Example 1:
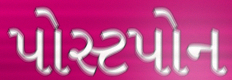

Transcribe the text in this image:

પોસ્ટપોન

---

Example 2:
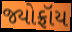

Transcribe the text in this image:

જ્યોફ્રૉય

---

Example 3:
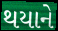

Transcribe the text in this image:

થયાને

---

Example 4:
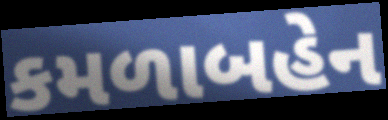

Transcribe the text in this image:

કમળાબહેન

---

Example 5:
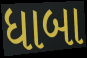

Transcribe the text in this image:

ધાબા